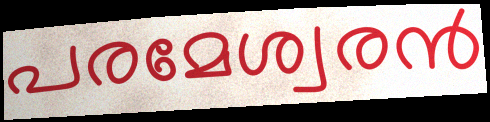
പരമേശ്വരൻ